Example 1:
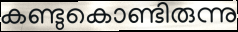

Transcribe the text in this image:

കണ്ടുകൊണ്ടിരുന്നു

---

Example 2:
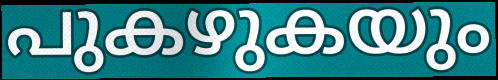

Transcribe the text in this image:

പുകഴുകയും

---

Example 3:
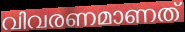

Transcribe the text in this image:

വിവരണമാണത്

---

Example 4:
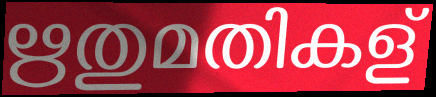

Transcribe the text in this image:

ഋതുമതികള്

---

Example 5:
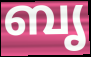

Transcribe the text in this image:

ബൃ